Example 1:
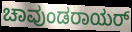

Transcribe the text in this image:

ಚಾವುಂಡರಾಯರ್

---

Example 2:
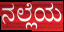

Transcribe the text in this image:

ನಲ್ಲೆಯ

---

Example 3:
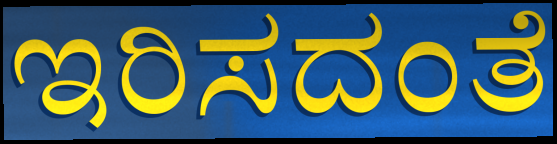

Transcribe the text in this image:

ಇರಿಸದಂತೆ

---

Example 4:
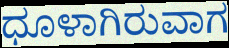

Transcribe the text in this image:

ಧೂಳಾಗಿರುವಾಗ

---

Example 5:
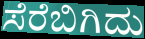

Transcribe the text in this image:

ಸೆರೆಬಿಗಿದು